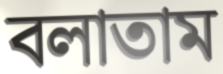
বলাতাম